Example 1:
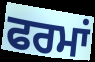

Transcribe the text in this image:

ਫਰਮਾਂ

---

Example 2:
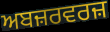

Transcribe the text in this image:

ਅਬਜ਼ਰਵਰਜ਼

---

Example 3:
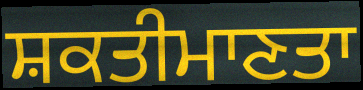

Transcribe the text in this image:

ਸ਼ਕਤੀਮਾਣਤਾ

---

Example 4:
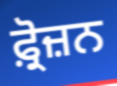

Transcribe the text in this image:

ਫ਼੍ਰੋਜ਼ਨ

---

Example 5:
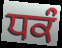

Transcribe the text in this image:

ਧਕੰ